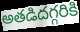
అతడిదగ్గరికి